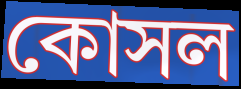
কোসল